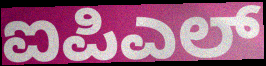
ಐಪಿಎಲ್